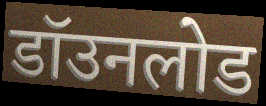
डॉउनलोड